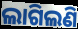
ଲାଗିଲଣି